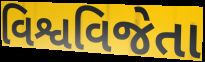
વિશ્વવિજેતા